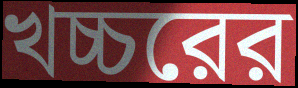
খচ্চরের